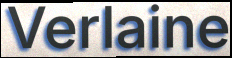
Verlaine